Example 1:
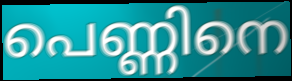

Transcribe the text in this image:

പെണ്ണിനെ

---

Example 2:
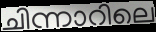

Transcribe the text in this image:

ചിന്നാറിലെ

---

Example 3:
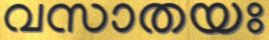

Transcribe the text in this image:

വസാതയഃ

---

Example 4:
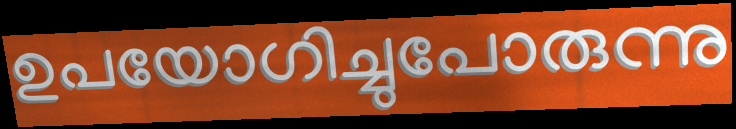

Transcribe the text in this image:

ഉപയോഗിച്ചുപോരുന്നു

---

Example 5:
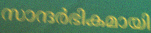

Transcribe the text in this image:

സാന്ദർഭികമായി